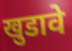
खुडावे